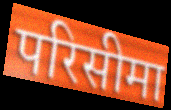
परिसीमा